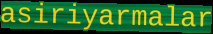
asiriyarmalar